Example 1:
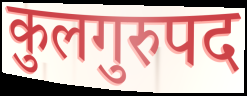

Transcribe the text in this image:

कुलगुरुपद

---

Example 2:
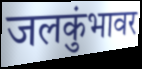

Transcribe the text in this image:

जलकुंभावर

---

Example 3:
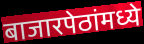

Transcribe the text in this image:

बाजारपेठांमध्ये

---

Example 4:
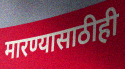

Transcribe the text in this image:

मारण्यासाठीही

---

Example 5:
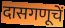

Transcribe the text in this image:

दासगणूचें